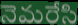
నెమరేసి